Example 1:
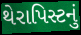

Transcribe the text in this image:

થેરાપિસ્ટનું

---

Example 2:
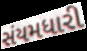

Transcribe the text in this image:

સંયમધારી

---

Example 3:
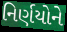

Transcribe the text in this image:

નિર્ણયોને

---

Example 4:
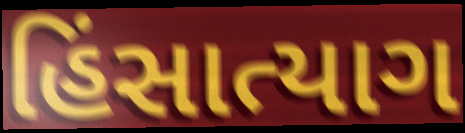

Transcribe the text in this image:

હિંસાત્યાગ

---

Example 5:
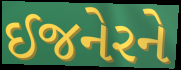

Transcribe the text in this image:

ઈજનેરને